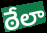
ఠేలా